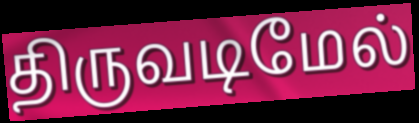
திருவடிமேல்